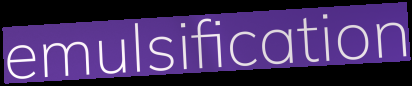
emulsification